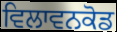
ਵਿਲਾਵਨਕੋਡ